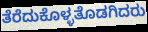
ತೆರೆದುಕೊಳ್ಳತೊಡಗಿದರು